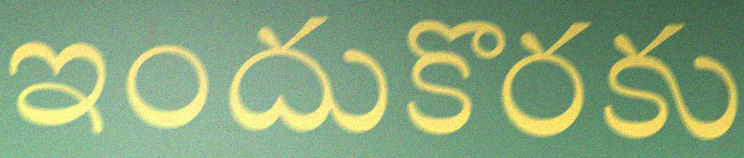
ఇందుకొరకు